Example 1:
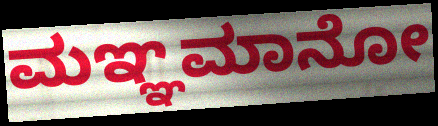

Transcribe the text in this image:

ಮಞ್ಞಮಾನೋ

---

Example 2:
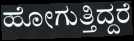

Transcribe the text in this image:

ಹೋಗುತ್ತಿದ್ದರೆ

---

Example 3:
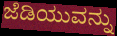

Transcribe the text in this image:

ಜೆಡಿಯುವನ್ನು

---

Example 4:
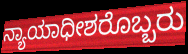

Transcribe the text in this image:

ನ್ಯಾಯಾಧೀಶರೊಬ್ಬರು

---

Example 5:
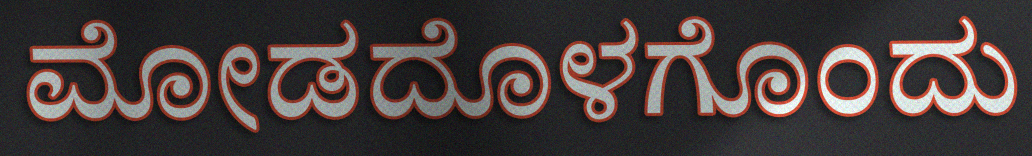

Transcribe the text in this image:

ಮೋಡದೊಳಗೊಂದು